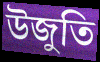
উজুতি